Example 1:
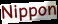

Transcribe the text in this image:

Nippon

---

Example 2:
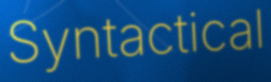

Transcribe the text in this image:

Syntactical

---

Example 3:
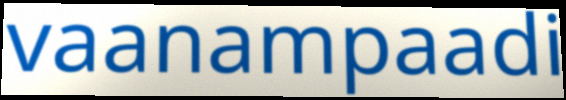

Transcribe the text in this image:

vaanampaadi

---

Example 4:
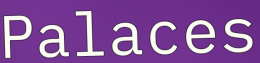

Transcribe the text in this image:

Palaces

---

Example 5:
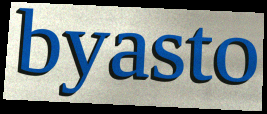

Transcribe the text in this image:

byasto